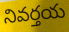
నివర్తయ